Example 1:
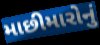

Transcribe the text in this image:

માછીમારોનું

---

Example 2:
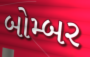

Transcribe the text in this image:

બોમ્બર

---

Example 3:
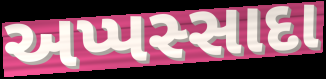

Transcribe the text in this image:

અપ્પસ્સાદા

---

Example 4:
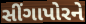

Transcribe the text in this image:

સીંગાપોરને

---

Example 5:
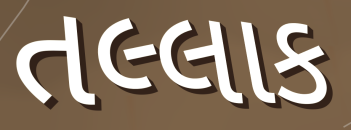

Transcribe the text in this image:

તલ્લાક